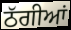
ਠੱਗੀਆਂ